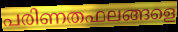
പരിണതഫലങ്ങളെ